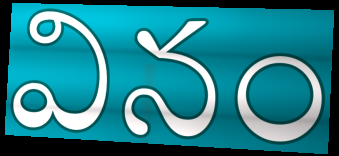
వినం